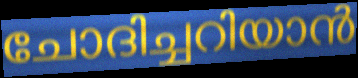
ചോദിച്ചറിയാൻ